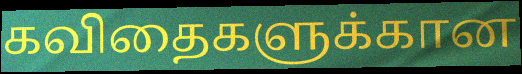
கவிதைகளுக்கான